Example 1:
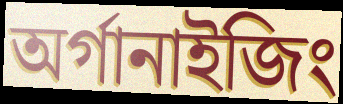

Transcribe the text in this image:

অর্গানাইজিং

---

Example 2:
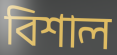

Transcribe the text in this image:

বিশাল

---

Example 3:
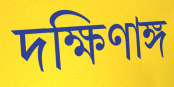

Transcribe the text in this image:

দক্ষিণাঙ্গ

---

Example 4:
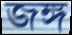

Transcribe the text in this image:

জঙ্গ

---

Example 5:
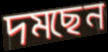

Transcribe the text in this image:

দমছেন